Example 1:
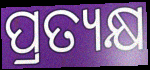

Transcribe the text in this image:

ପ୍ରତ୍ଯକ୍ଷ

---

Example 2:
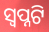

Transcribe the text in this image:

ସ୍ୱପ୍ନଟି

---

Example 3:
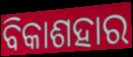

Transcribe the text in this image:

ବିକାଶହାର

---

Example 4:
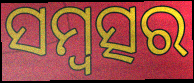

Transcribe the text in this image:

ସମ୍ବତ୍ସର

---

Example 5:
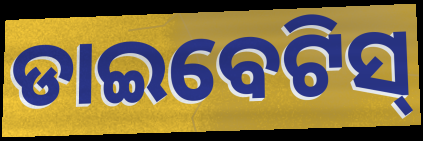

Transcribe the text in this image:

ଡାଇବେଟିସ୍